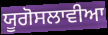
ਯੂਗੋਸਲਾਵੀਆ